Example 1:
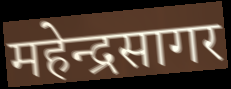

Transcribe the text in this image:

महेन्द्रसागर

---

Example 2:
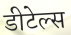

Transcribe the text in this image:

डीटेल्स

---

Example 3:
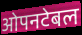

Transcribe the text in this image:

ओपनटेबल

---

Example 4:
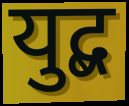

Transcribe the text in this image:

युद्ब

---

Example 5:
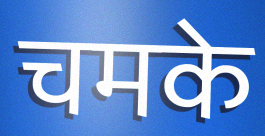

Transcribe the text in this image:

चमके